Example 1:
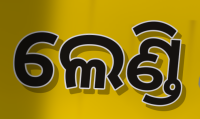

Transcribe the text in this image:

ଲେଣ୍ଡି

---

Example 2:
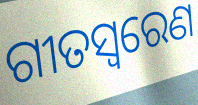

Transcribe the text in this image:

ଗୀତସ୍ବରେଣ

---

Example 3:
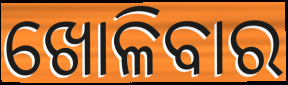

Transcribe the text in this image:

ଖୋଳିବାର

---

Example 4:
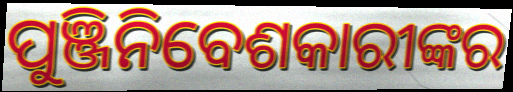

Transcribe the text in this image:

ପୁଞ୍ଜିନିବେଶକାରୀଙ୍କର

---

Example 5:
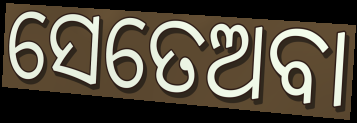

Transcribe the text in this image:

ସେତେଅବା